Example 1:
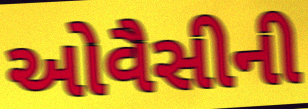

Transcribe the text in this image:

ઓવૈસીની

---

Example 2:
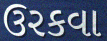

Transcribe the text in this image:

ઉરકવા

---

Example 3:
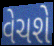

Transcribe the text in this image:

વેચશે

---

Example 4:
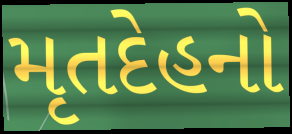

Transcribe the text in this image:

મૃતદેહનો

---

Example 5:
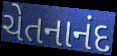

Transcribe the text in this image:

ચેતનાનંદ